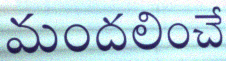
మందలించే